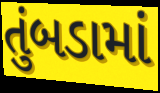
તુંબડામાં